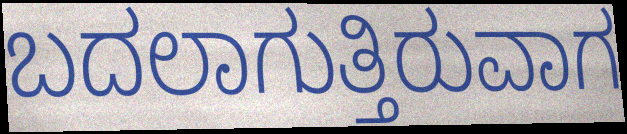
ಬದಲಾಗುತ್ತಿರುವಾಗ